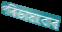
পৰিভাষাবোৰ